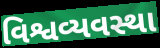
વિશ્વવ્યવસ્થા